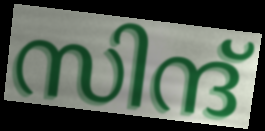
സിന്ദ്